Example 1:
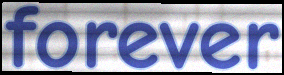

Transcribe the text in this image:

forever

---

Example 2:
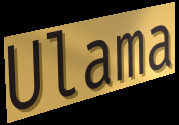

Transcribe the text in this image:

Ulama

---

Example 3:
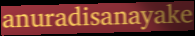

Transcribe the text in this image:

anuradisanayake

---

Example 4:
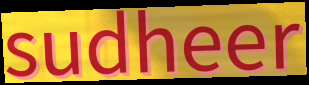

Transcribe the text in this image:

sudheer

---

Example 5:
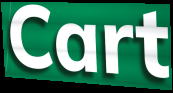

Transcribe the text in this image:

Cart